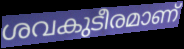
ശവകുടീരമാണ്